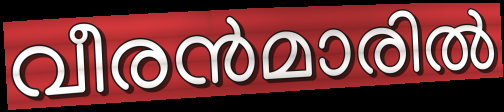
വീരൻമാരിൽ